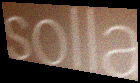
solla